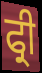
ਫ੍ਰੀ